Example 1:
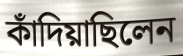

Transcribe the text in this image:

কাঁদিয়াছিলেন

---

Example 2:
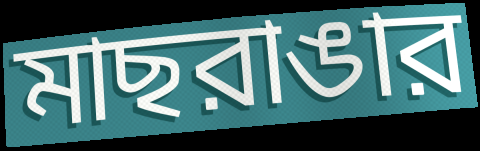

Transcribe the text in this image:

মাছরাঙার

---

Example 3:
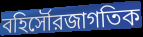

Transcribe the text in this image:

বহির্সৌরজাগতিক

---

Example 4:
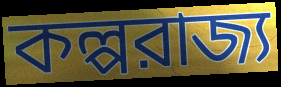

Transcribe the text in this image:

কল্পরাজ্য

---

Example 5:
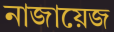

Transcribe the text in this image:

নাজায়েজ